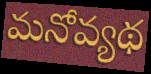
మనోవ్యథ